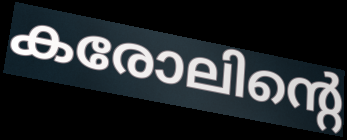
കരോലിന്റെ